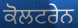
ਕੋਲਟਰੇਨ